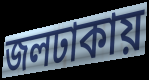
জলঢাকায়